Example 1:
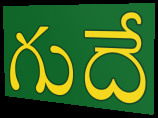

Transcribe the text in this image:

గుదే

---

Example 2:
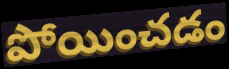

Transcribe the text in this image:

పోయించడం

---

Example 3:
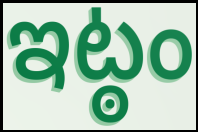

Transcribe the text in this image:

ఇట్ఠం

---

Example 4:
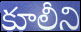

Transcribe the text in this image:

కూలీని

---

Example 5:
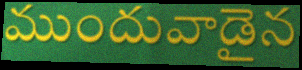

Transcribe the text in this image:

ముందువాడైన